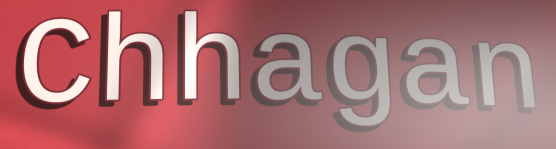
Chhagan